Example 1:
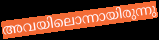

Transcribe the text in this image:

അവയിലൊന്നായിരുന്നു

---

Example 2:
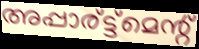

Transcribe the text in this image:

അപ്പാര്ട്ട്മെന്റ്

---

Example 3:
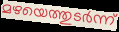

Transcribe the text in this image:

മഴയെത്തുടർന്ന്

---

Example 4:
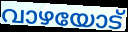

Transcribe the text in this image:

വാഴയോട്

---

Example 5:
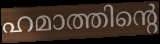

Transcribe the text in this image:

ഹമാത്തിന്റെ